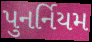
પુનર્નિયમ